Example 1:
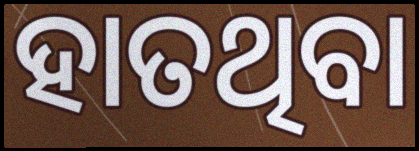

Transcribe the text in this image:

ହାତଥିବା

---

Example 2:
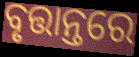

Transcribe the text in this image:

ବୃତ୍ତାନ୍ତରେ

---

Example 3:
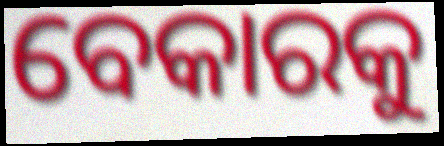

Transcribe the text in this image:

ବେକାରକୁ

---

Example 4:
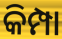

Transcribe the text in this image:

କିମ୍ପା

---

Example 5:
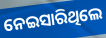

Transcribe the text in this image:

ନେଇସାରିଥିଲେ